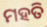
ମହତି